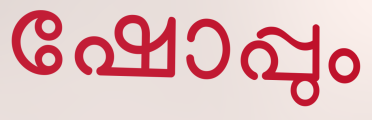
ഷോപ്പും